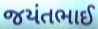
જયંતભાઈ